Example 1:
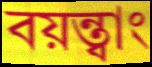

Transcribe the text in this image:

বয়ন্ত্বাং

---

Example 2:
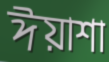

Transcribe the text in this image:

ঈয়াশা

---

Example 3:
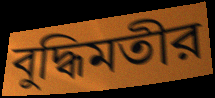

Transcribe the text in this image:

বুদ্ধিমতীর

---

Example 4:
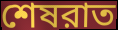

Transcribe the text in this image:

শেষরাত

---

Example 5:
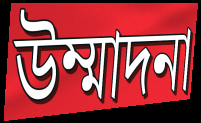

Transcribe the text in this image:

উম্মাদনা